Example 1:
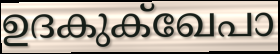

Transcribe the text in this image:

ഉദകുക്ഖേപാ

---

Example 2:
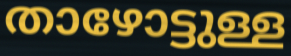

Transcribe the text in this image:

താഴോട്ടുള്ള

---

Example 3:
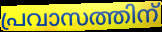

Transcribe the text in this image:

പ്രവാസത്തിന്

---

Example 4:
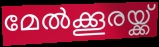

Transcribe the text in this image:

മേൽക്കൂരയ്ക്ക്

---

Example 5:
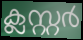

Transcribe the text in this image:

ക്ലസ്റ്റർ